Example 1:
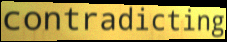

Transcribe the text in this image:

contradicting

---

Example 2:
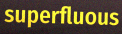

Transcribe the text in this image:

superfluous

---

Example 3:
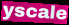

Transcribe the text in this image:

yscale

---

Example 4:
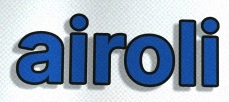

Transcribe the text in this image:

airoli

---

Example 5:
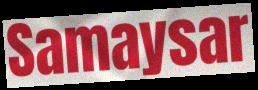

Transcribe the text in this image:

Samaysar